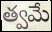
త్వమే